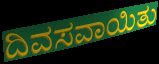
ದಿವಸವಾಯಿತು